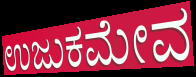
ಉಜುಕಮೇವ